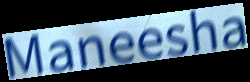
Maneesha